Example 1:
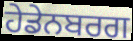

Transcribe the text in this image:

ਹੇਡੇਨਬਰਗ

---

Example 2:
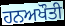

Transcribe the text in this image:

ਹਨਅਖੌਤੀ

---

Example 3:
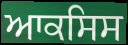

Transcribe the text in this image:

ਆਕਸਿਸ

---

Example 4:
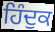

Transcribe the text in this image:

ਹਿੰਦੁਕ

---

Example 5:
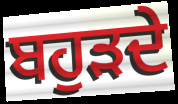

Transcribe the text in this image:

ਬਹੁੜਦੇ